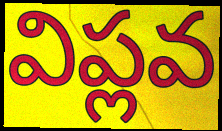
విప్లవ